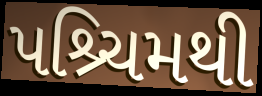
પશ્ર્ચિમથી